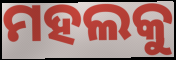
ମହଲକୁ